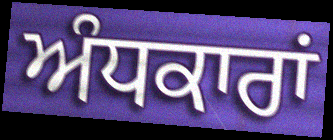
ਅੰਧਕਾਰਾਂ